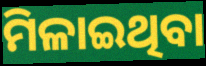
ମିଳାଇଥିବା